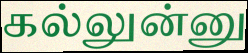
கல்லுன்னு